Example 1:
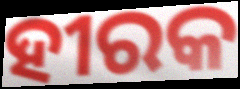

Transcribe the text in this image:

ହୀରକ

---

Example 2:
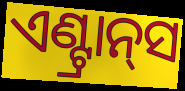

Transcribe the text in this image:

ଏଣ୍ଟ୍ରାନ୍‍ସ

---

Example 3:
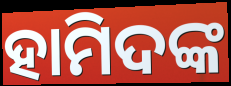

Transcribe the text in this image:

ହାମିଦଙ୍କ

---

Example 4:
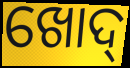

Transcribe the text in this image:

ଖୋଦ୍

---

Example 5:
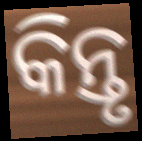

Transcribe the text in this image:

କିନ୍ତୃ